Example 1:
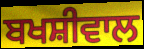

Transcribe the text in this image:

ਬਖਸ਼ੀਵਾਲ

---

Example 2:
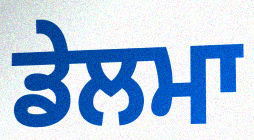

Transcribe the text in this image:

ਡੇਲਮਾ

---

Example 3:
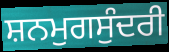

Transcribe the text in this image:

ਸ਼ਨਮੁਗਸੁੰਦਰੀ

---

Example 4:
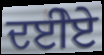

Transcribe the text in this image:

ਦਈੇਏ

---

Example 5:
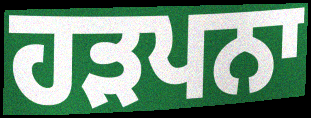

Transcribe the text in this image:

ਹੜਪਨਾ